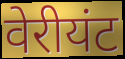
वेरीयंट